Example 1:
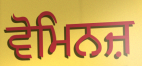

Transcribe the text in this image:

ਵੋਮਿਨਜ਼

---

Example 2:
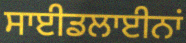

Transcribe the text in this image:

ਸਾਈਡਲਾਈਨਾਂ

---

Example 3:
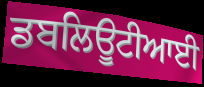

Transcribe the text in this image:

ਡਬਲਿਊਟੀਆਈ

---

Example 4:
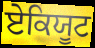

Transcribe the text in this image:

ਏਕਿਯੂਟ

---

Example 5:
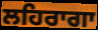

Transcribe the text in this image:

ਲਹਿਰਾਗਾ